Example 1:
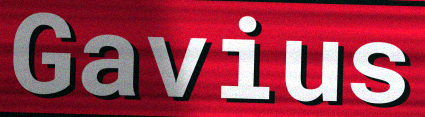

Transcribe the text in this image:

Gavius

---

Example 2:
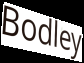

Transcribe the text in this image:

Bodley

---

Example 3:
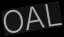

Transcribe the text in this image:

OAL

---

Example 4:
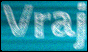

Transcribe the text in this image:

Vraj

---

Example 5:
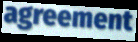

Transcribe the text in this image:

agreement